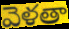
వెళతా